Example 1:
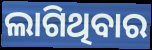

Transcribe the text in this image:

ଲାଗିଥିବାର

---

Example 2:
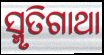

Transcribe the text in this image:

ସ୍ମୃତିଗାଥା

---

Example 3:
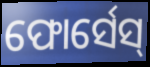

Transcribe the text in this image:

ଫୋର୍ସେସ୍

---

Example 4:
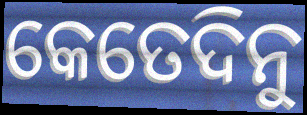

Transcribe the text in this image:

କେତେଦିନୁ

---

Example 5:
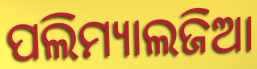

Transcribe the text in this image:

ପଲିମ୍ୟାଲଜିଆ